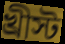
খ্রীস্ট